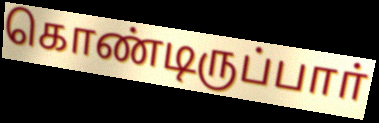
கொண்டிருப்பார்